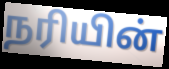
நரியின்